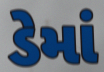
ડેમાં